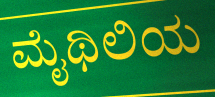
ಮೈಥಿಲಿಯ